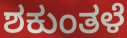
ಶಕುಂತಳೆ